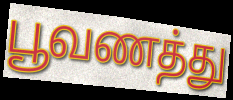
பூவணத்து